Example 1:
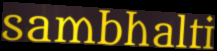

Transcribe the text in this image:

sambhalti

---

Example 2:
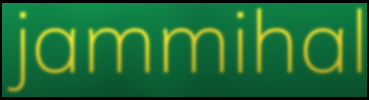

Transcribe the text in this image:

jammihal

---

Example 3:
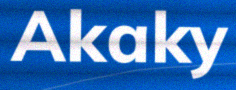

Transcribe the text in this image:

Akaky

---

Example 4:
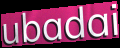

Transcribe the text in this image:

ubadai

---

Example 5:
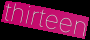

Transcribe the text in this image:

thirteen